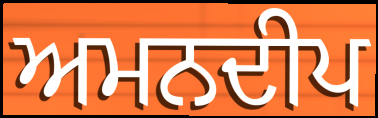
ਅਮਨਦੀਪ